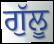
ਗੁੱਲੂ